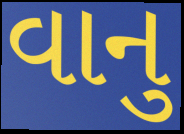
વાનુ